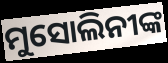
ମୁସୋଲିନୀଙ୍କ